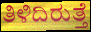
ತಿಳಿದಿರುತ್ತೆ